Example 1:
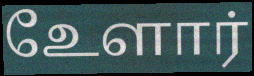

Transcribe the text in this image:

உேளார்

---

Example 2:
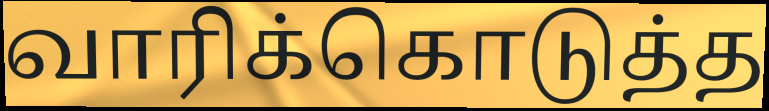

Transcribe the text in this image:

வாரிக்கொடுத்த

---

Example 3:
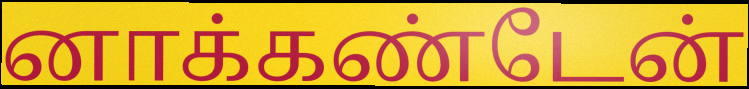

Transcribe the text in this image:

னாக்கண்டேன்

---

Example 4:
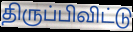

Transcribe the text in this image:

திருப்பிவிட்டு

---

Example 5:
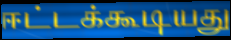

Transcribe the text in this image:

ஈட்டக்கூடியது